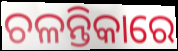
ଚଳନ୍ତିକାରେ